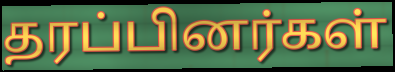
தரப்பினர்கள்